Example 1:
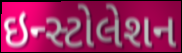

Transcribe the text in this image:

ઇન્સ્ટોલેશન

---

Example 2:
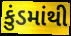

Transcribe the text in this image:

કુંડમાંથી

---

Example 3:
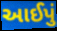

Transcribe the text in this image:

આઈપું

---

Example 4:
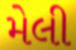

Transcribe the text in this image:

મેલી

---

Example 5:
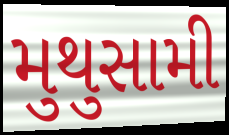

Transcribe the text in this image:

મુથુસામી